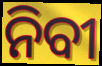
ନିବୀ